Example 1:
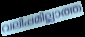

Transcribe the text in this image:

വലിപ്പമില്ലാത്ത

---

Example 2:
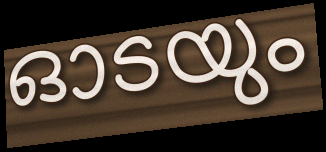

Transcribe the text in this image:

ഓടയും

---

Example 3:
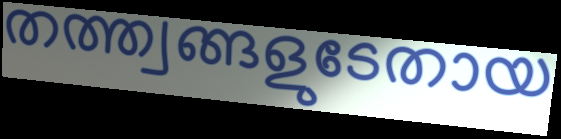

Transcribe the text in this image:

തത്ത്വങ്ങളുടേതായ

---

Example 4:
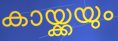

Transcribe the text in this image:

കായ്ക്കയും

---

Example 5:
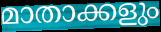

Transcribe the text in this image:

മാതാക്കളും